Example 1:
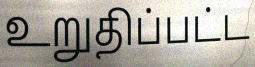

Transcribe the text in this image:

உறுதிப்பட்ட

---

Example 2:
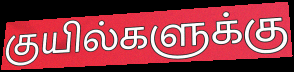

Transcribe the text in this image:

குயில்களுக்கு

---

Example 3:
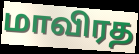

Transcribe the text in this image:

மாவிரத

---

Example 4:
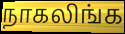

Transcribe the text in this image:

நாகலிங்க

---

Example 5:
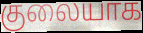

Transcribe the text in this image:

குலையாக